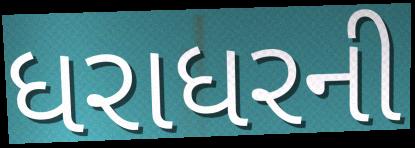
ધરાધરની